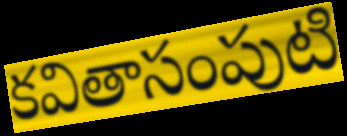
కవితాసంపుటి